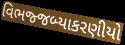
વિભજ્જબ્યાકરણીયો